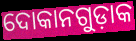
ଦୋକାନଗୁଡ଼ାକ